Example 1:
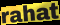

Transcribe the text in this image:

rahat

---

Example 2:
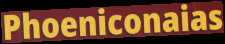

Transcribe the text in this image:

Phoeniconaias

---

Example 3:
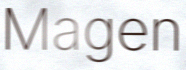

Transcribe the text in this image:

Magen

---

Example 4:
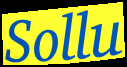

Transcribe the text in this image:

Sollu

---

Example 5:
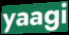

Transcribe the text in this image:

yaagi